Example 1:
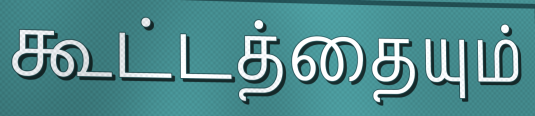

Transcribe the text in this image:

கூட்டத்தையும்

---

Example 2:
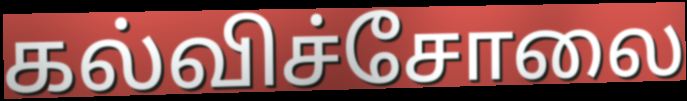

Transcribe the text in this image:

கல்விச்சோலை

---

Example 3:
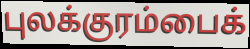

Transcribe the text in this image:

புலக்குரம்பைக்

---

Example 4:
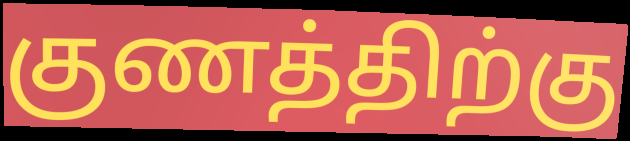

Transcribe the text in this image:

குணத்திற்கு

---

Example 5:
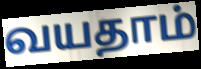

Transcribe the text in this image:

வயதாம்